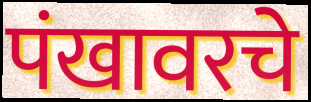
पंखावरचे